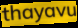
thayavu